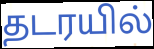
தடரயில்